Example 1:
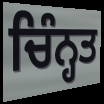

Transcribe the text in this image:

ਚਿੰਨ੍ਹਤ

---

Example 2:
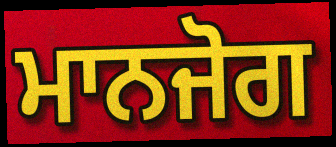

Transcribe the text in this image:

ਮਾਨਜੋਗ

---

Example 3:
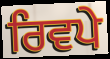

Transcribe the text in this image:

ਰਿਵਪੇ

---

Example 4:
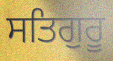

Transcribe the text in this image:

ਸਤਿਗੁਰੂ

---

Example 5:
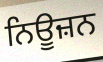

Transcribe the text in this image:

ਨਿਊਜ਼ਨ